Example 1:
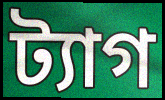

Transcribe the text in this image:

ট্যাগ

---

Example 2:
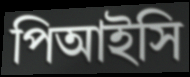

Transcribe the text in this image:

পিআইসি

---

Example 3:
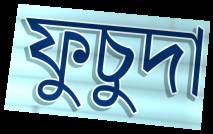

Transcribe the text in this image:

ফুচুদা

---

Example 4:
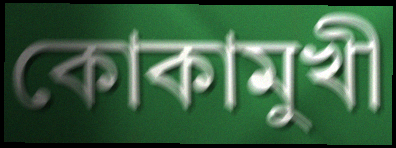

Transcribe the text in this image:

কোকামুখী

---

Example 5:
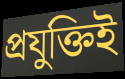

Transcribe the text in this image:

প্রযুক্তিই